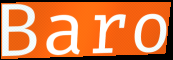
Baro